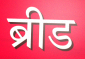
ब्रीड